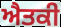
ਐਤਕੀ